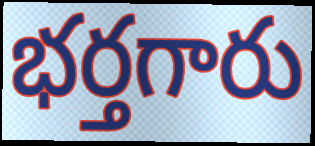
భర్తగారు